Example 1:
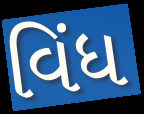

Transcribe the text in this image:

વિંધ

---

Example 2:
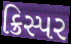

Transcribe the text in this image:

ક્રિસ્પર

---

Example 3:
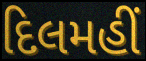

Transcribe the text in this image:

દિલમહીં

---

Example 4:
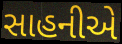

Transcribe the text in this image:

સાહનીએ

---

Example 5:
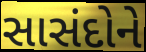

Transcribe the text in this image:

સાસંદોને